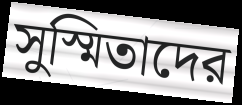
সুস্মিতাদের